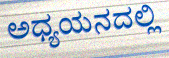
ಅಧ್ಯಯನದಲ್ಲಿ